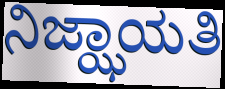
ನಿಜ್ಝಾಯತಿ